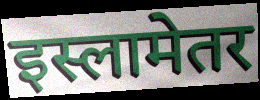
इस्लामेतर